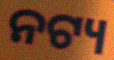
ନଟ୍ୟ